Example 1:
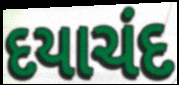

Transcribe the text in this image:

દયાચંદ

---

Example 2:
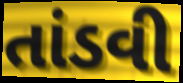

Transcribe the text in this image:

તાંડવી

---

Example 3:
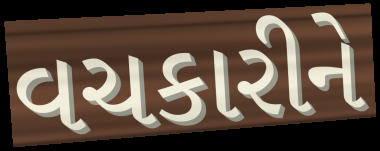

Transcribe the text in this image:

વચકારીને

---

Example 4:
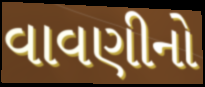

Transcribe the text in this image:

વાવણીનો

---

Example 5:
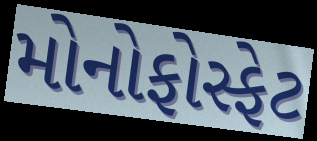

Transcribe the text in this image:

મોનોફોસ્ફેટ